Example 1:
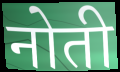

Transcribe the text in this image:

नोती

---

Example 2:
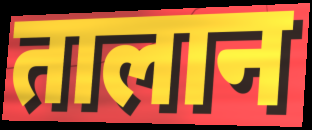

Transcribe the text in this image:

तालान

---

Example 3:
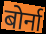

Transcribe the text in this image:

बोर्ना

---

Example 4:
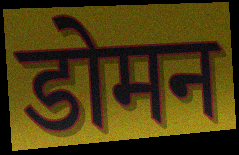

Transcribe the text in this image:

डोमन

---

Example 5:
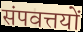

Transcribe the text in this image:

संपवत्तयों